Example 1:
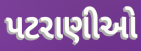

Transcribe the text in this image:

પટરાણીઓ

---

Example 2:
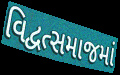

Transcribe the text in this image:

વિદ્વત્સમાજમાં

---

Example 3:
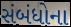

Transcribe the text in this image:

સંબંધોના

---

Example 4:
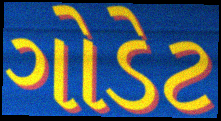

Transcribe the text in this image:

ગોડેટ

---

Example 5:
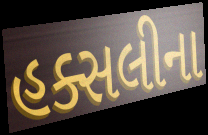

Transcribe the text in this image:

હક્સલીના